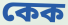
কেক